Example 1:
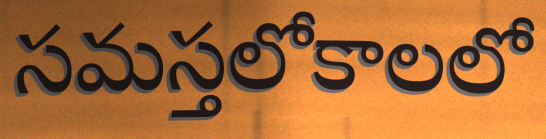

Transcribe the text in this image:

సమస్తలోకాలలో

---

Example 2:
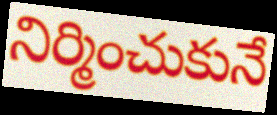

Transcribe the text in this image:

నిర్మించుకునే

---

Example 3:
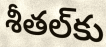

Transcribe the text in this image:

శీతల్‌కు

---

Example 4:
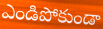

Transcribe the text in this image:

ఎండిపోకుండా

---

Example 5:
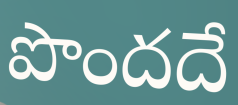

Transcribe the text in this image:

పొందదే